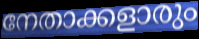
നേതാക്കളാരും